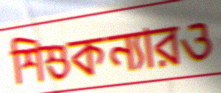
শিশুকন্যারও